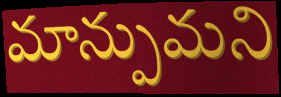
మాన్పుమని